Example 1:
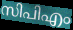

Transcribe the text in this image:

സിപിഎം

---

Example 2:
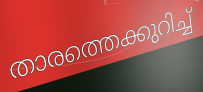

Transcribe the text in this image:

താരത്തെക്കുറിച്ച്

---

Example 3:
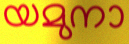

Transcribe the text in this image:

യമുനാ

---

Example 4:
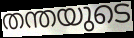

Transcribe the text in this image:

തന്തയുടെ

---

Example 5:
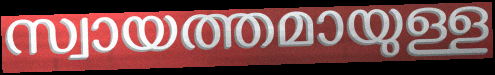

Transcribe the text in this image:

സ്വായത്തമായുള്ള